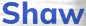
Shaw